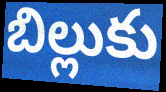
బిల్లుకు